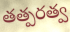
తత్పరత్వ